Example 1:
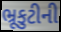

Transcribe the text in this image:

ભ્રૂકુટીની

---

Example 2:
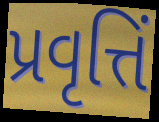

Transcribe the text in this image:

પ્રવૃત્તિં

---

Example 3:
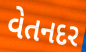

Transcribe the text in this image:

વેતનદર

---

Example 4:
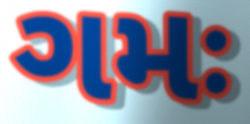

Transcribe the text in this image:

ગમઃ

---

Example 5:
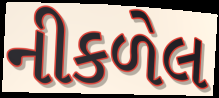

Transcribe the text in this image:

નીકળેલ